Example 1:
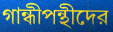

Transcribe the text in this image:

গান্ধীপন্থীদের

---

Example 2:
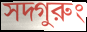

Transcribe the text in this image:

সদ্গুরুং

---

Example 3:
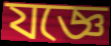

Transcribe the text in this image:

যজ্ঞে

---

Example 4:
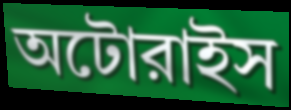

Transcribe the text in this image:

অটোরাইস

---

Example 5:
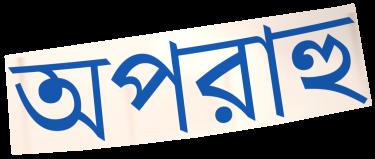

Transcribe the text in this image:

অপরাহু